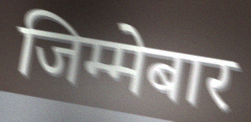
जिम्मेबार